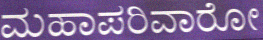
ಮಹಾಪರಿವಾರೋ